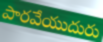
పారవేయుదురు